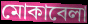
মোকাবেলা